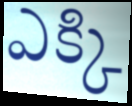
ఎక్కి